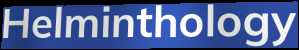
Helminthology